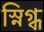
স্নিগ্ধ